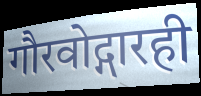
गौरवोद्गारही